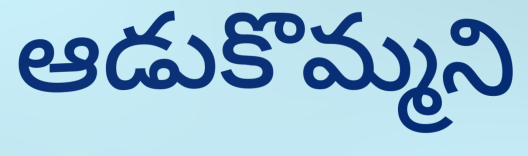
ఆడుకొమ్మని